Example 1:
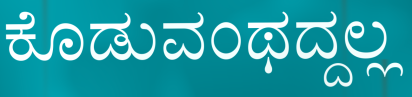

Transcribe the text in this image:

ಕೊಡುವಂಥದ್ದಲ್ಲ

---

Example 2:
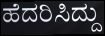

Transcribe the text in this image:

ಹೆದರಿಸಿದ್ದು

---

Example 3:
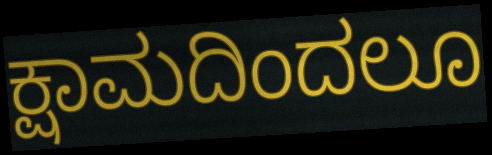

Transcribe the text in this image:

ಕ್ಷಾಮದಿಂದಲೂ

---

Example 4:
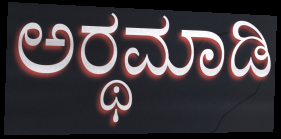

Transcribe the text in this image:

ಅರ್‍ಥಮಾಡಿ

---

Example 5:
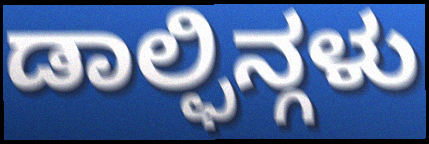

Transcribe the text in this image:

ಡಾಲ್ಫಿನ್ಗಳು